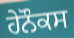
ਹੇਨੌਕਸ